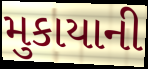
મુકાયાની